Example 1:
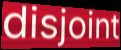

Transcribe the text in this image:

disjoint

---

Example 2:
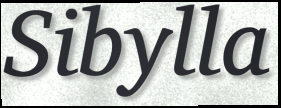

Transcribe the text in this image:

Sibylla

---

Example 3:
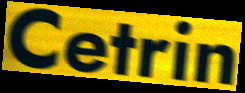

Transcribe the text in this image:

Cetrin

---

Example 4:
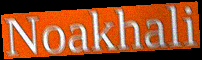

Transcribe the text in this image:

Noakhali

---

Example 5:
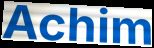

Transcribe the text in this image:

Achim